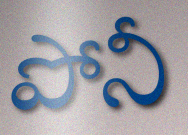
పోనీ